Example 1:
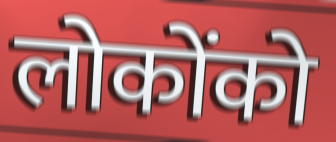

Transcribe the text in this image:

लोकोंको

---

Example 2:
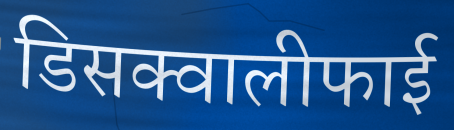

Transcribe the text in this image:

डिसक्वालीफाई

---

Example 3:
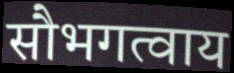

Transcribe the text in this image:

सौभगत्वाय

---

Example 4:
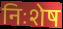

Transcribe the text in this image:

निःशेष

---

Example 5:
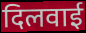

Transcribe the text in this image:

दिलवाई